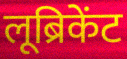
लूब्रिकेंट